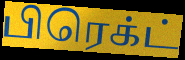
பிரெக்ட்